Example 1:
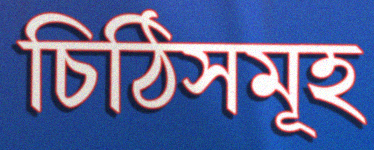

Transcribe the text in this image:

চিঠিসমূহ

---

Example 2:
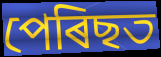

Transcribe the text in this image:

পেৰিছত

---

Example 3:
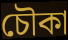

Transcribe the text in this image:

চৌকা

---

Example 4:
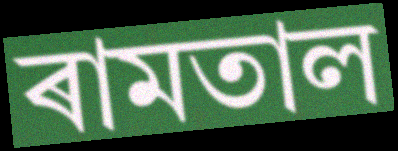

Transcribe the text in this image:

ৰামতাল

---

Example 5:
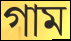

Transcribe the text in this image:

গাম